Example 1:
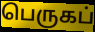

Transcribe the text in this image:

பெருகப்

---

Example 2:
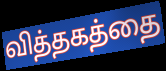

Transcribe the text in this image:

வித்தகத்தை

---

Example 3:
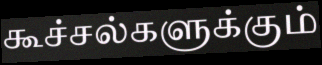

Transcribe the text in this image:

கூச்சல்களுக்கும்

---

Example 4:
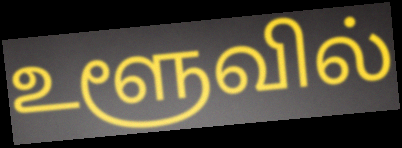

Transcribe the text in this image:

உளூவில்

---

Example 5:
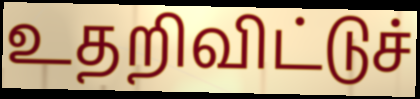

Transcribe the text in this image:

உதறிவிட்டுச்